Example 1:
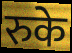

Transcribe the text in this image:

रुके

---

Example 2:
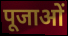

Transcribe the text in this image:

पूजाओं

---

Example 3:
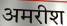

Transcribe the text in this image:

अमरीश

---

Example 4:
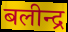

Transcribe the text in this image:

बलीन्द्र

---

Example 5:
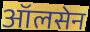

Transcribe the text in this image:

ऑलसेन